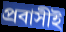
প্রবাসীই